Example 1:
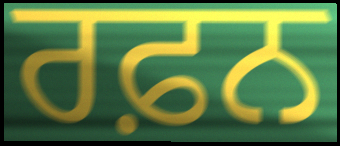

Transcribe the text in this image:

ਰਫ਼ਨ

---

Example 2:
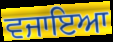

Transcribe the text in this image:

ਵਜਾਇਆ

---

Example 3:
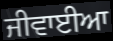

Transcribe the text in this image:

ਜੀਵਾਈਆ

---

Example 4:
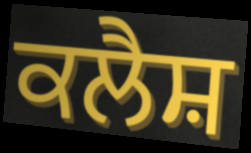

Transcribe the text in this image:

ਕਲੈਸ਼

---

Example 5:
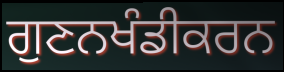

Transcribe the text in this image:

ਗੁਣਨਖੰਡੀਕਰਨ